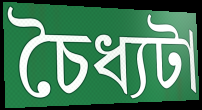
চৈধ্যটা